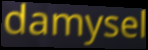
damysel